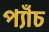
প্যাঁচ